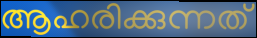
ആഹരിക്കുന്നത്